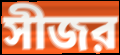
সীজর